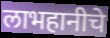
लाभहानीचे